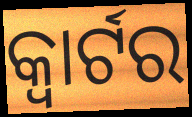
କ୍ଵାର୍ଟର